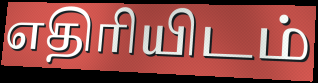
எதிரியிடம்